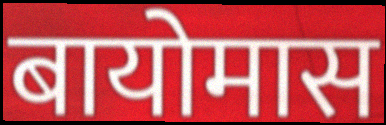
बायोमास